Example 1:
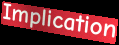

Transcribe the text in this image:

Implication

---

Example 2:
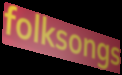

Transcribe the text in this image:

folksongs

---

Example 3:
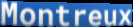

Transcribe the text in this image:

Montreux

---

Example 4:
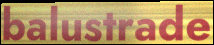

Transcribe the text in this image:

balustrade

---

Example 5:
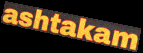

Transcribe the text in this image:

ashtakam